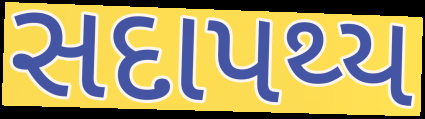
સદાપથ્ય